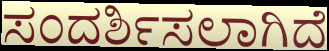
ಸಂದರ್ಶಿಸಲಾಗಿದೆ